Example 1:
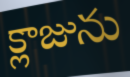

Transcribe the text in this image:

క్లాజును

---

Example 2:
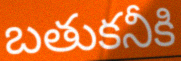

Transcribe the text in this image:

బతుకనీకి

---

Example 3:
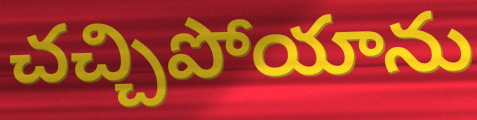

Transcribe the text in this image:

చచ్చిపోయాను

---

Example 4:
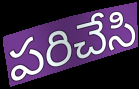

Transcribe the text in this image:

పరిచేసి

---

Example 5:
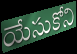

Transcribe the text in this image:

యేసుకోని